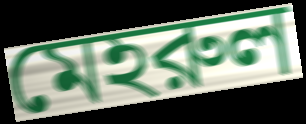
মেহরুল